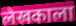
लेखकाला